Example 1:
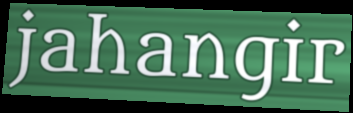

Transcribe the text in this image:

jahangir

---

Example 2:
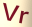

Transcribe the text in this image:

Vr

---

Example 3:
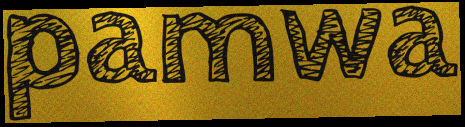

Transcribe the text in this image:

pamwa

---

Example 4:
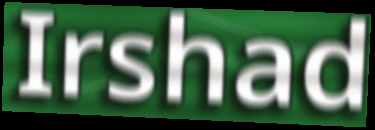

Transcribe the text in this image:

Irshad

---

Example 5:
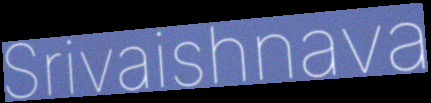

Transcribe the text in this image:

Srivaishnava